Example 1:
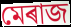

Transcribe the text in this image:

মেৰাজ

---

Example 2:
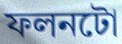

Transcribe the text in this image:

ফলনটো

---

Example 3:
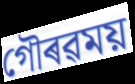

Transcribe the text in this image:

গৌৰৱময়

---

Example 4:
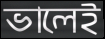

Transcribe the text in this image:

ভালেই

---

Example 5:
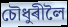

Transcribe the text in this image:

চৌধুৰীলৈ